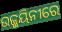
ଉଜ୍ଜୟିନୀରେ